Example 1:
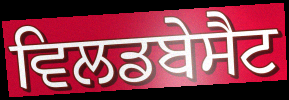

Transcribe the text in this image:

ਵਿਲਡਬੇਸੈਟ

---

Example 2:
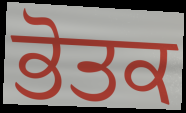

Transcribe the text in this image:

ਭੋਤਕ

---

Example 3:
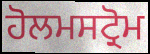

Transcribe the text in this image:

ਹੋਲਮਸਟ੍ਰੋਮ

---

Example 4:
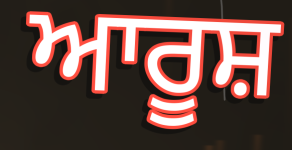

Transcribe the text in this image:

ਆਰੂਸ਼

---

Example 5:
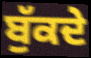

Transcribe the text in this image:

ਬੁੱਕਦੇ